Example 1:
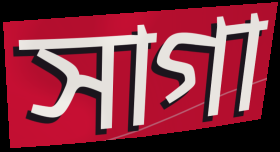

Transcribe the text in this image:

সাগা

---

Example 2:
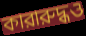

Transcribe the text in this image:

কারারুদ্ধও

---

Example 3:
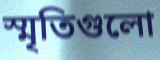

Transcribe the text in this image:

স্মৃতিগুলো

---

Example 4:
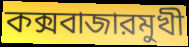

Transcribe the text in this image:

কক্সবাজারমুখী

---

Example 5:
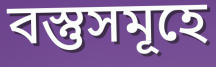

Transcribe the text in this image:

বস্তুসমূহে